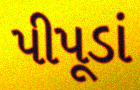
પીપૂડાં